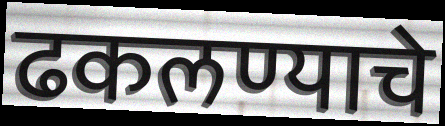
ढकलण्याचे